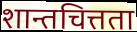
शान्तचित्तता